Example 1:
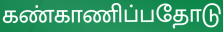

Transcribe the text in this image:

கண்காணிப்பதோடு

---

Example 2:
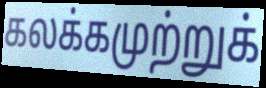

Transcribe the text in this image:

கலக்கமுற்றுக்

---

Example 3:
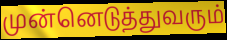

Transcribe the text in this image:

முன்னெடுத்துவரும்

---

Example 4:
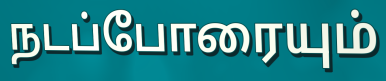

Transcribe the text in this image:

நடப்போரையும்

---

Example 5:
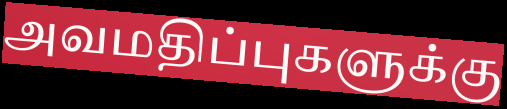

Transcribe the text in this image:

அவமதிப்புகளுக்கு